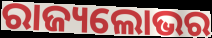
ରାଜ୍ୟଲୋଭର